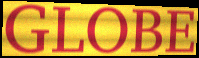
GLOBE